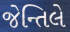
જેન્તિલે